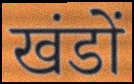
खंडों